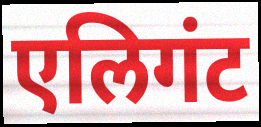
एलिगंट